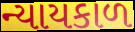
ન્યાયકાળ